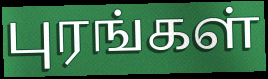
புரங்கள்